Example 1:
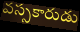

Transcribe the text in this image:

వస్సకారుడు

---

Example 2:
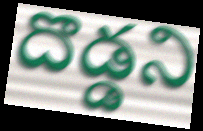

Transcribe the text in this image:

దొడ్డని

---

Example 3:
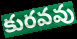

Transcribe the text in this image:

కురవవు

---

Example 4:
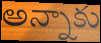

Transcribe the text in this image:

అన్నాకు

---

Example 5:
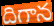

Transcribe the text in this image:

దిగాన